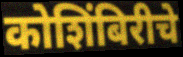
कोशिंबिरीचे